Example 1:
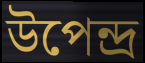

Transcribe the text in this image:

উপেন্দ্র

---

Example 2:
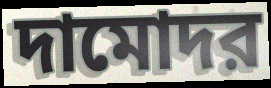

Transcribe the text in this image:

দামোদর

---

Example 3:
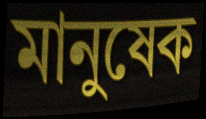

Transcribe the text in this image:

মানুষেক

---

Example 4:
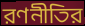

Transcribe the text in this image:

রণনীতির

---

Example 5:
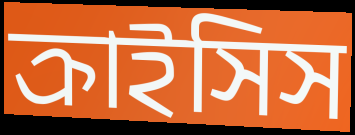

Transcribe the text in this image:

ক্রাইসিস